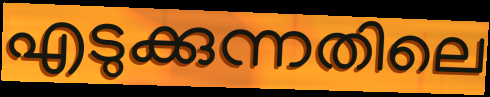
എടുക്കുന്നതിലെ